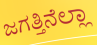
ಜಗತ್ತಿನೆಲ್ಲಾ